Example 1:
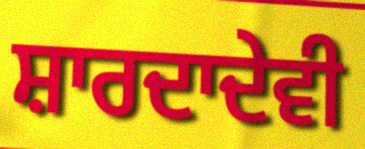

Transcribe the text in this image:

ਸ਼ਾਰਦਾਦੇਵੀ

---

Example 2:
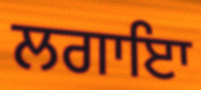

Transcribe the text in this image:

ਲਗਾਇਾ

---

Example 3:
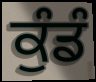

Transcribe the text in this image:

ਕੁੰਡੰ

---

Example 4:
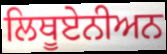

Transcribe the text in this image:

ਲਿਥੂਏਨੀਅਨ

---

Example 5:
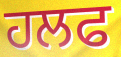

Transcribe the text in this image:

ਹਲਫ